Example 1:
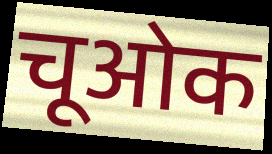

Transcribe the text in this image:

चूओक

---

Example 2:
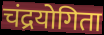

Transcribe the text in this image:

चंद्रयोगिता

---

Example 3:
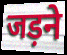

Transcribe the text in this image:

जड़ने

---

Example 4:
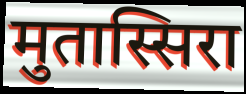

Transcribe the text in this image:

मुतास्सिरा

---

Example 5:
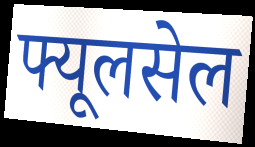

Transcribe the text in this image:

फ्यूलसेल